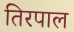
तिरपाल